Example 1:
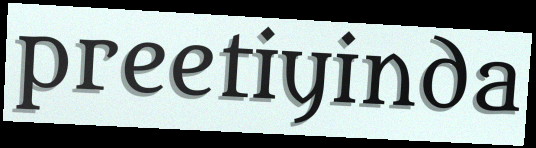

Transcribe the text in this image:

preetiyinda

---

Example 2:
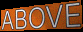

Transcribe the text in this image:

ABOVE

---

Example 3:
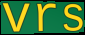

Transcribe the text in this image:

vrs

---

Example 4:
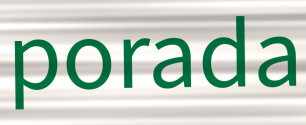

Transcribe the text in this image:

porada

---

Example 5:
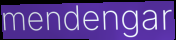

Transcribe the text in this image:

mendengar